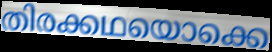
തിരക്കഥയൊക്കെ